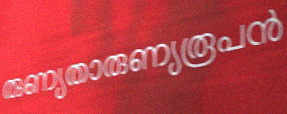
രുണ്യതാരുണ്യരൂപൻ